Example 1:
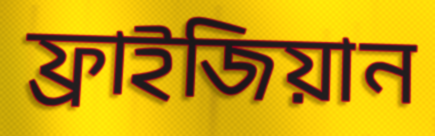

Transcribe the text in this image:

ফ্রাইজিয়ান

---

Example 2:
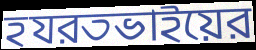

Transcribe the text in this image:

হযরতভাইয়ের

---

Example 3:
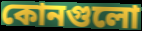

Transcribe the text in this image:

কোনগুলো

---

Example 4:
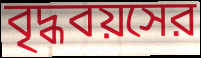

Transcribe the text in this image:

বৃদ্ধবয়সের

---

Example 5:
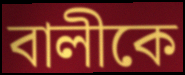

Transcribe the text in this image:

বালীকে